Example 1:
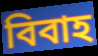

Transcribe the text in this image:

বিবাহ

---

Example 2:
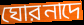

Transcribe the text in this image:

ঘোরনাদে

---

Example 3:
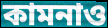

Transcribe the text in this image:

কামনাও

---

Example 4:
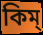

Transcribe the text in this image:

কিম্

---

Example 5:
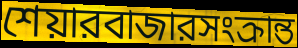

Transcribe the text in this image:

শেয়ারবাজারসংক্রান্ত